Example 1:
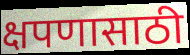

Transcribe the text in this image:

क्षपणासाठी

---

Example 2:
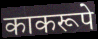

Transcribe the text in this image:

काकरूपे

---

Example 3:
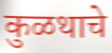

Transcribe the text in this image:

कुळथाचे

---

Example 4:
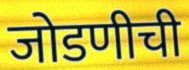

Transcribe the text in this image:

जोडणीची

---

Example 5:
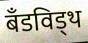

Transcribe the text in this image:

बँडविड्थ